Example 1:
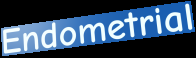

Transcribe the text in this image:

Endometrial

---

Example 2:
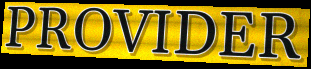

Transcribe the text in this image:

PROVIDER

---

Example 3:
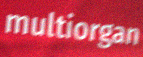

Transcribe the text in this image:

multiorgan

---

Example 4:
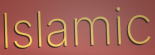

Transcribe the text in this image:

lslamic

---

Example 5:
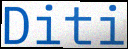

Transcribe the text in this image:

Diti